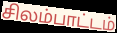
சிலம்பாட்டம்